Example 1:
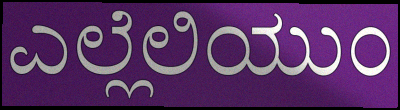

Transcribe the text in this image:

ಎಲ್ಲೆಲಿಯುಂ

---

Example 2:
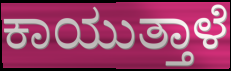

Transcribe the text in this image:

ಕಾಯುತ್ತಾಳೆ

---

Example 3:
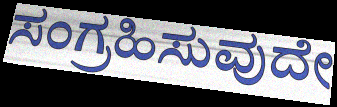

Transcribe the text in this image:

ಸಂಗ್ರಹಿಸುವುದೇ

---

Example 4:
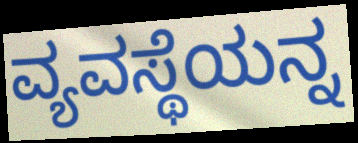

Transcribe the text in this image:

ವ್ಯವಸ್ಥೆಯನ್ನ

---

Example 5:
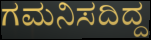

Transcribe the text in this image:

ಗಮನಿಸದಿದ್ದ